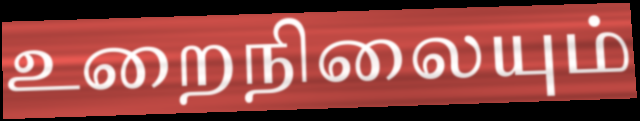
உறைநிலையும்